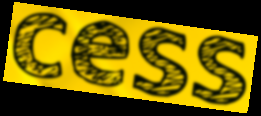
cess